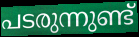
പടരുന്നുണ്ട്